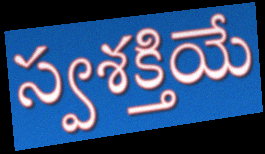
స్వశక్తియే